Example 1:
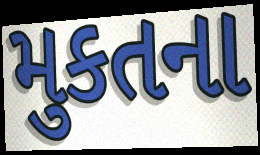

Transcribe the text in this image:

મુકતના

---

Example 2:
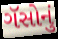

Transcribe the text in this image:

ગૅસોનું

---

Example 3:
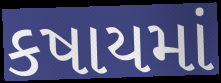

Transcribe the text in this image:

કષાયમાં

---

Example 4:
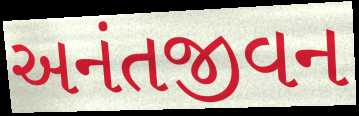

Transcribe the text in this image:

અનંતજીવન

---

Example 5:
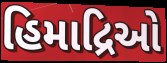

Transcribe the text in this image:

હિમાદ્રિઓ